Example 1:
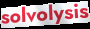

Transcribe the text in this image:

solvolysis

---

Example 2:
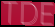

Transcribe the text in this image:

TDE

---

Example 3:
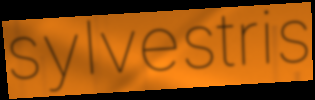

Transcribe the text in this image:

sylvestris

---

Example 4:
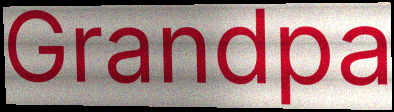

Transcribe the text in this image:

Grandpa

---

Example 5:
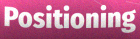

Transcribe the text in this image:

Positioning